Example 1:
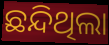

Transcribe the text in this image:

ଛନ୍ଦିଥିଲା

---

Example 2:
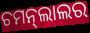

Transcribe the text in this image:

ଚମନ୍‍ଲାଲର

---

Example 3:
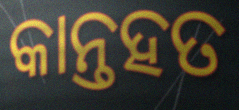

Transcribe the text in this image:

କାନ୍ତହତ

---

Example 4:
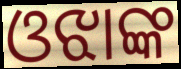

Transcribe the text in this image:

ଓଝାଙ୍କ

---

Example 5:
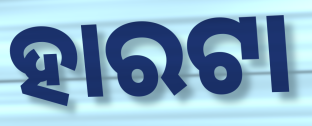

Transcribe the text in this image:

ହାରଟା